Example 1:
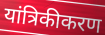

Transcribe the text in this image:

यांत्रिकीकरण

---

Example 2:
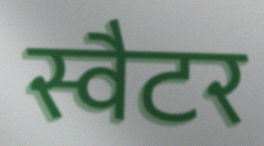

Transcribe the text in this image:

स्वैटर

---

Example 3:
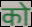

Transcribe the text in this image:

को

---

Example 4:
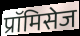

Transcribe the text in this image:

प्रॉमिसेज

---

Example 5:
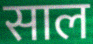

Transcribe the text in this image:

साल